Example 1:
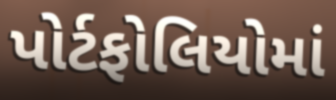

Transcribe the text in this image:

પોર્ટફોલિયોમાં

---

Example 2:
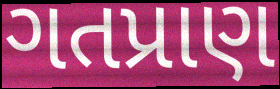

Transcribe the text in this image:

ગતપ્રાણ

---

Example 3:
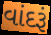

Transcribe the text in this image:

વાંદરૂં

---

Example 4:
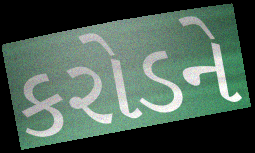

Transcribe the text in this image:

કરોડને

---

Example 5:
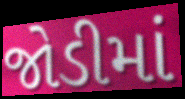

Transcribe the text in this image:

જોડીમાં